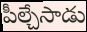
పీల్చేసాడు